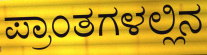
ಪ್ರಾಂತಗಳಲ್ಲಿನ